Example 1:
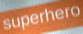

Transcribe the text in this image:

superhero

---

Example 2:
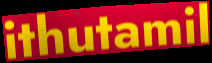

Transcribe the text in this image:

ithutamil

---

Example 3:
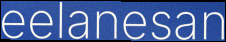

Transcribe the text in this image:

eelanesan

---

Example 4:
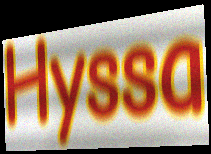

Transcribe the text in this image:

Hyssa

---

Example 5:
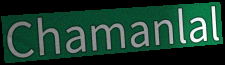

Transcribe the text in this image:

Chamanlal